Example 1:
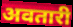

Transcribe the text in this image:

अवतारी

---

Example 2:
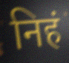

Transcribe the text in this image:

निहं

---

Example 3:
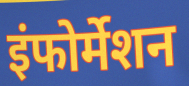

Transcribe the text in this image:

इंफोर्मेशन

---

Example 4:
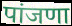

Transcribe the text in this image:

पांजणा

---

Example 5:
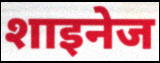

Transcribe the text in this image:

शाइनेज